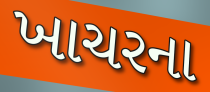
ખાચરના